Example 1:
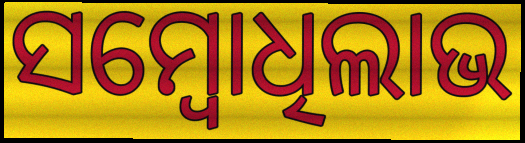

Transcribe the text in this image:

ସମ୍ବୋଧିଲାଭ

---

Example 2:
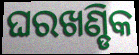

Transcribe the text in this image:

ଘରଖଣ୍ଡିକ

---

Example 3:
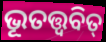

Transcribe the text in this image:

ଭୂତତ୍ତ୍ୱବିତ୍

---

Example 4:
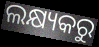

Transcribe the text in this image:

ଲକ୍ଷ୍ୟକରୁ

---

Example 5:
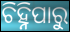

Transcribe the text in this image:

ଚିହ୍ନିପାରୁ